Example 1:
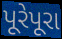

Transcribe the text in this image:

પૂરેપૂરા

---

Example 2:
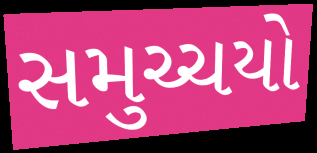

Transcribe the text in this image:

સમુચ્ચયો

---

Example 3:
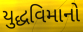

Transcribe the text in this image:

યુદ્ધવિમાનો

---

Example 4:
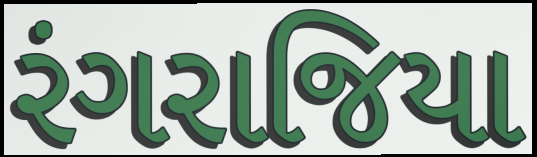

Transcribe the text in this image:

રંગરાજિયા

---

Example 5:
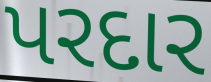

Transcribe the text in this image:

પરદાર